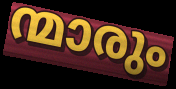
ന്മാരും